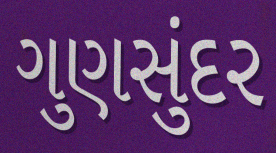
ગુણસુંદર